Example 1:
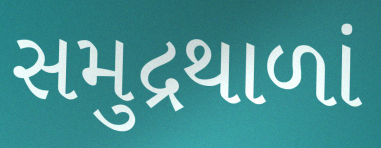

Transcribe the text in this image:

સમુદ્રથાળાં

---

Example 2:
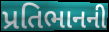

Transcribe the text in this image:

પ્રતિભાનની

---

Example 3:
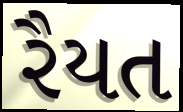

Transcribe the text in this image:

રૈયત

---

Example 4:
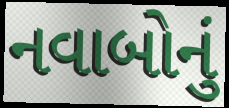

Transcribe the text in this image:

નવાબોનું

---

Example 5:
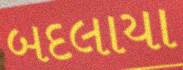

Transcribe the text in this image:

બદલાયા